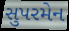
સુપરમેન